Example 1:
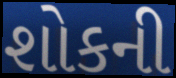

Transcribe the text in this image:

શોકની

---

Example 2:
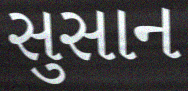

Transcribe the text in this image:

સુસાન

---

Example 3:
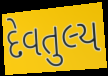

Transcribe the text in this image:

દેવતુલ્ય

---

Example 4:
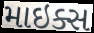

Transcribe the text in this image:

માઇક્સ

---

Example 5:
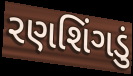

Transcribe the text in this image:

રણશિંગડું